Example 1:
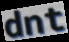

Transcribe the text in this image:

dnt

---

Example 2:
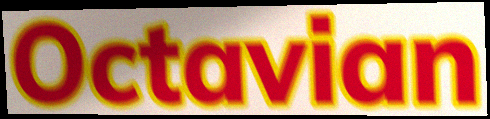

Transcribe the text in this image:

Octavian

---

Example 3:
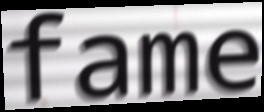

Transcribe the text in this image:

fame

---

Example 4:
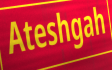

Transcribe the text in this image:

Ateshgah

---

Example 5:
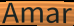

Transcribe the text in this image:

Amar